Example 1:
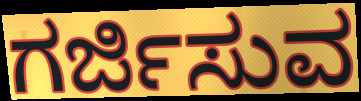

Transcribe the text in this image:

ಗರ್ಜಿಸುವ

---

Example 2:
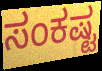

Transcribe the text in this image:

ಸಂಕಷ್ಟ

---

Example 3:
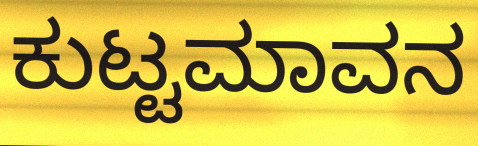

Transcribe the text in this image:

ಕುಟ್ಟಮಾವನ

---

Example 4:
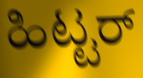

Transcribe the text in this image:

ಹಿಟ್ಟರ್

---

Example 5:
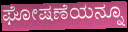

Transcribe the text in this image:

ಘೋಷಣೆಯನ್ನೂ